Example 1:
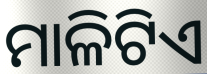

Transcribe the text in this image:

ମାଳିଟିଏ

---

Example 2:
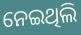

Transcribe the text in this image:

ନେଇଥିଲି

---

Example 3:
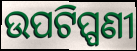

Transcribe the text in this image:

ଉପଟିପ୍ପଣୀ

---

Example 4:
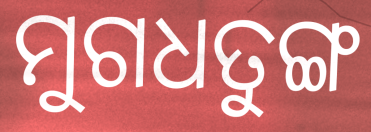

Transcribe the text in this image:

ମୁଗଧତୁଙ୍ଗ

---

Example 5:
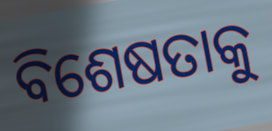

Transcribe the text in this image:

ବିଶେଷତାକୁ